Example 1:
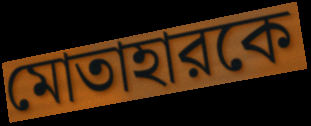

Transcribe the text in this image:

মোতাহারকে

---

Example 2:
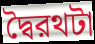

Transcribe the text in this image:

দ্বৈরথটা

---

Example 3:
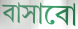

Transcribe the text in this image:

বাসাবো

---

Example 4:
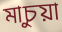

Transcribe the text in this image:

মাচুয়া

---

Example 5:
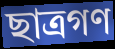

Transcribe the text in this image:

ছাত্রগণ